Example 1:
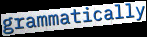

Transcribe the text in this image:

grammatically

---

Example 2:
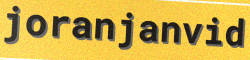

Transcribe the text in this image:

joranjanvid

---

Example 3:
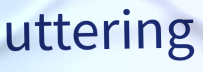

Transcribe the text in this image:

uttering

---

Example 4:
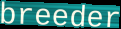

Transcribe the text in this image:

breeder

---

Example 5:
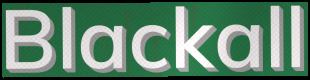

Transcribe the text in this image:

Blackall